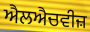
ਐਲਐਚਵੀਜ਼